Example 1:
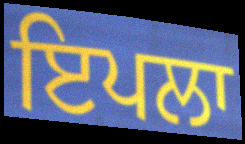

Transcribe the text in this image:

ਇਪਲਾ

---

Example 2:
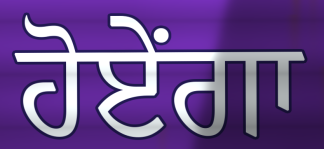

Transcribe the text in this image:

ਹੋਏਂਗਾ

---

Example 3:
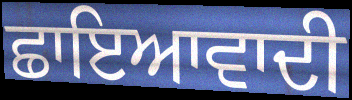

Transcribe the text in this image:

ਛਾਇਆਵਾਦੀ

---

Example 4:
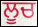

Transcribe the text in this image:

ਲੂਚ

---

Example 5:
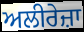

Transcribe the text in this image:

ਅਲੀਰੇਜ਼ਾ